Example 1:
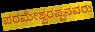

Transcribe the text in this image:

ಪರಮೇಶ್ವರಪ್ಪನವರು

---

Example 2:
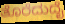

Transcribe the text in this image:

ತೊರೆದುದೈ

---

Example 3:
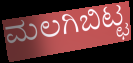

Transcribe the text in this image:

ಮಲಗಿಬಿಟ್ಟ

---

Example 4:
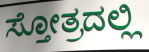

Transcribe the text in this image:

ಸ್ತೋತ್ರದಲ್ಲಿ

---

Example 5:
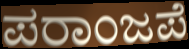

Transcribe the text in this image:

ಪರಾಂಜಪೆ